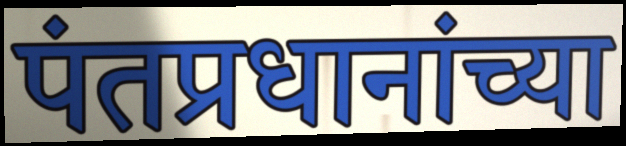
पंतप्रधानांच्या